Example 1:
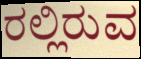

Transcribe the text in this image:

ರಲ್ಲಿರುವ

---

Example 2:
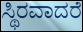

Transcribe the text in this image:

ಸ್ಥಿರವಾದರೆ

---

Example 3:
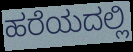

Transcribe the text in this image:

ಹರೆಯದಲ್ಲಿ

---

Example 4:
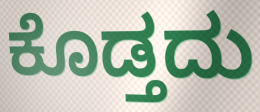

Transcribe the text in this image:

ಕೊಡ್ತದು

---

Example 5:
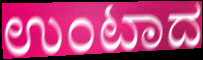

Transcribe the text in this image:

ಉಂಟಾದ